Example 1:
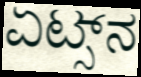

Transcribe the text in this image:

ಏಟ್ಸ್‌ನ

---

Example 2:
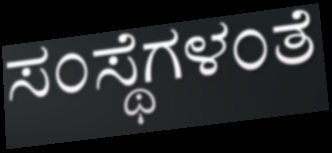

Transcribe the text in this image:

ಸಂಸ್ಥೆಗಳಂತೆ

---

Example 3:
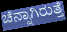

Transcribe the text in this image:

ಚೆನ್ನಾಗಿರುತ್ತೆ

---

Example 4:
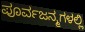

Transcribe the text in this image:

ಪೂರ್ವಜನ್ಮಗಳಲ್ಲಿ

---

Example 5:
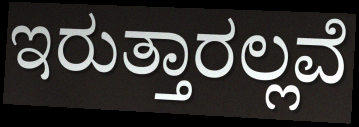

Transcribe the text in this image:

ಇರುತ್ತಾರಲ್ಲವೆ